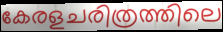
കേരളചരിത്രത്തിലെ